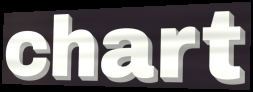
chart